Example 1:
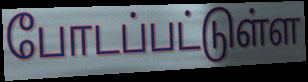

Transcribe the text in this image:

போடப்பட்டுள்ள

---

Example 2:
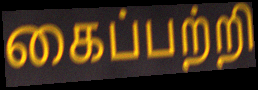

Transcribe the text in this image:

கைப்பற்றி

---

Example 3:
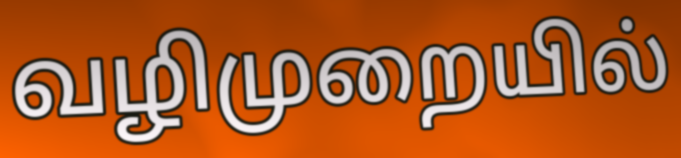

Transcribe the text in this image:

வழிமுறையில்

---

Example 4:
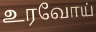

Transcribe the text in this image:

உரவோய்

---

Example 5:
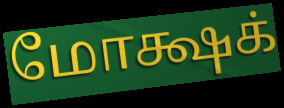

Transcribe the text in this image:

மோக்ஷக்